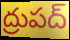
ద్రుపద్